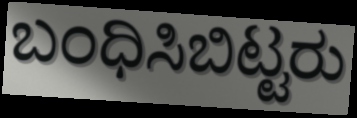
ಬಂಧಿಸಿಬಿಟ್ಟರು